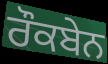
ਰੌਕਬੇਨ